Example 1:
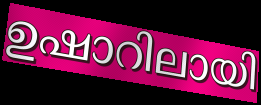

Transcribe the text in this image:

ഉഷാറിലായി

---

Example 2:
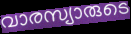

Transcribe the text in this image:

വാരസ്യാരുടെ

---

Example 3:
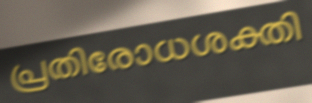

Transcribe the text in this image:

പ്രതിരോധശക്തി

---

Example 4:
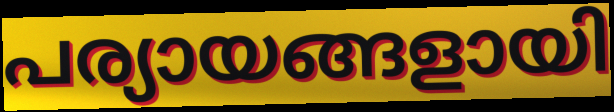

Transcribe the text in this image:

പര്യായങ്ങളായി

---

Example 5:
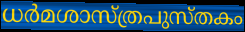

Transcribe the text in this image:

ധർമശാസ്ത്രപുസ്തകം